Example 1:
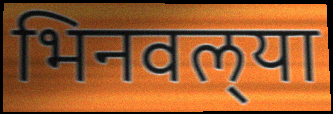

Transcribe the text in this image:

भिनवल्या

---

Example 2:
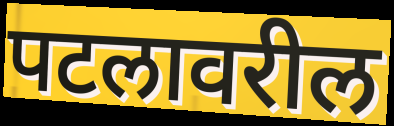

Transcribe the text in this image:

पटलावरील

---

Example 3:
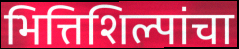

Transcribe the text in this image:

भित्तिशिल्पांचा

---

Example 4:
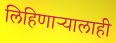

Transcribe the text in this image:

लिहिणाऱ्यालाही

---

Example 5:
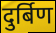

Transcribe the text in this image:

दुर्बिण